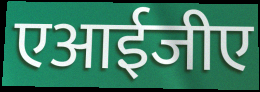
एआईजीए